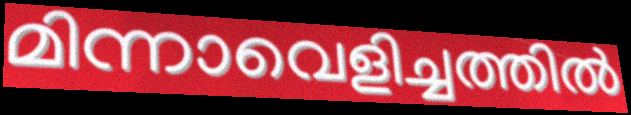
മിന്നാവെളിച്ചത്തിൽ